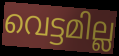
വെട്ടമില്ല